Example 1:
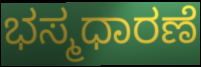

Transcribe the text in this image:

ಭಸ್ಮಧಾರಣೆ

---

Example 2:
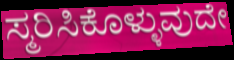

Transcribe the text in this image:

ಸ್ಮರಿಸಿಕೊಳ್ಳುವುದೇ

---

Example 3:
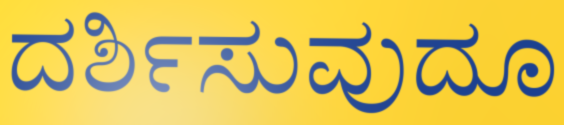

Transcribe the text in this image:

ದರ್ಶಿಸುವುದೂ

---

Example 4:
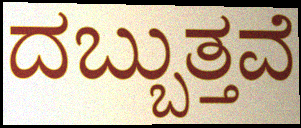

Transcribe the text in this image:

ದಬ್ಬುತ್ತವೆ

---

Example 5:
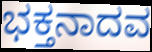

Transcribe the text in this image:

ಭಕ್ತನಾದವ